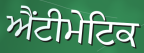
ਐਂਟੀਮੇਟਿਕ